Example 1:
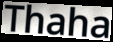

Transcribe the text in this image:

Thaha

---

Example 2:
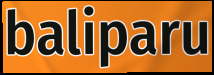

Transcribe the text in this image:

baliparu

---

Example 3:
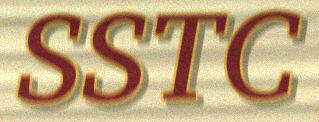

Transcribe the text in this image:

SSTC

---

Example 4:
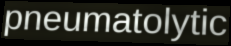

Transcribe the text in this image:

pneumatolytic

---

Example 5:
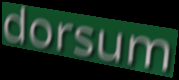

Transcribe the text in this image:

dorsum